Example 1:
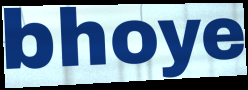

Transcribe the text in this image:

bhoye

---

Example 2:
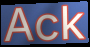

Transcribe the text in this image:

Ack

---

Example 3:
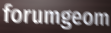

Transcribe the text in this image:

forumgeom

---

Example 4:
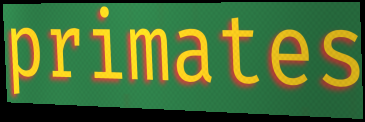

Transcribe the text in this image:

primates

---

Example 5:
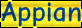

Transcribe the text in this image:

Appian